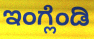
ಇಂಗ್ಲೆಂಡಿ